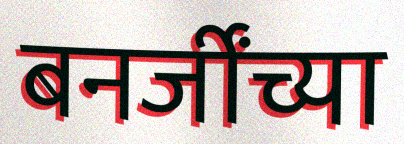
बनर्जींच्या